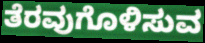
ತೆರವುಗೊಳಿಸುವ